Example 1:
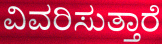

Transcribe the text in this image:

ವಿವರಿಸುತ್ತಾರೆ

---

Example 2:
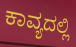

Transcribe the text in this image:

ಕಾವ್ಯದಲ್ಲಿ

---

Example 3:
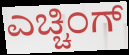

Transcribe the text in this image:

ಎಚ್ಚಿಂಗ್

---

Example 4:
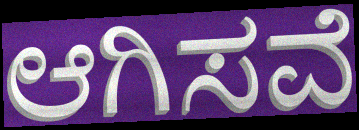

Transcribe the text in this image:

ಆಗಿಸವೆ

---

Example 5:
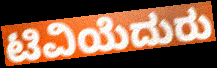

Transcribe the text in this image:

ಟಿವಿಯೆದುರು